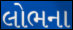
લોભના